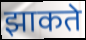
झाकते